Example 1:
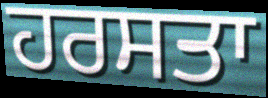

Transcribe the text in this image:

ਹਰਸਤਾ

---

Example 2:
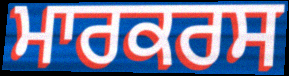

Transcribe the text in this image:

ਮਾਰਕਰਸ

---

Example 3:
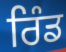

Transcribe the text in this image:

ਰਿੰਡ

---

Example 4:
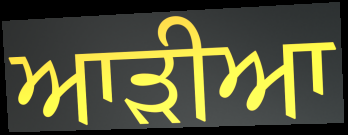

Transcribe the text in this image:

ਆੜੀਆ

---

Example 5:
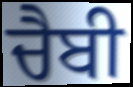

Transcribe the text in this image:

ਚੈਬੀ